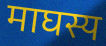
माघस्य